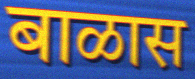
बाळास